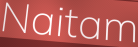
Naitam